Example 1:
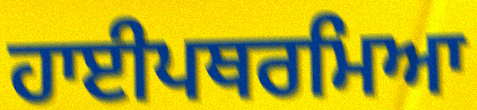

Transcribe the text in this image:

ਹਾਈਪਥਰਮਿਆ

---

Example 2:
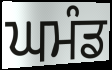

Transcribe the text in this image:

ਘਮੰਡ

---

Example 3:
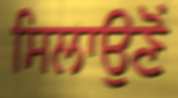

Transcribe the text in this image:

ਸਿਲਾਉਣੋਂ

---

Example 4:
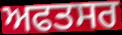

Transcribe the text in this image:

ਅਫਤਸਰ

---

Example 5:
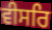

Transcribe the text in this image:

ਵੀਸਰਿ